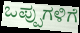
ಒಪ್ಪುಗಳಿಗೆ